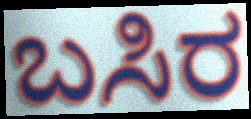
ಬಸಿರ